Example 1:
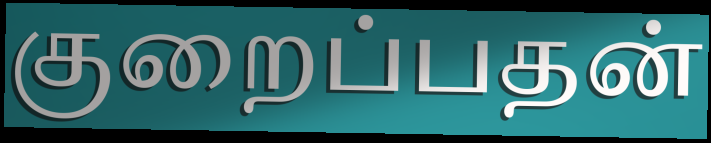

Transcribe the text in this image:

குறைப்பதன்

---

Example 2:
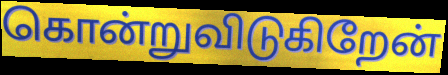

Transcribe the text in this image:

கொன்றுவிடுகிறேன்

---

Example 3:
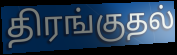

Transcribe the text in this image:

திரங்குதல்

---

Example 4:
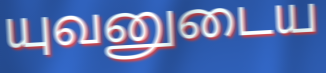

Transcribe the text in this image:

யுவனுடைய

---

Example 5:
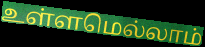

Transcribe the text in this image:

உள்ளமெல்லாம்